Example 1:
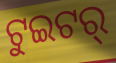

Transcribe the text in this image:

ଟୁଇଟର୍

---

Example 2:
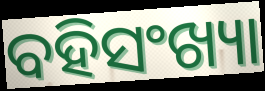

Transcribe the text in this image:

ବହିସଂଖ୍ୟା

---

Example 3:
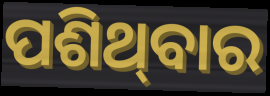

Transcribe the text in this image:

ପଶିଥ୍‌ବାର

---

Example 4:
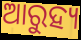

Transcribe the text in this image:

ଆରୁହ୍ୟ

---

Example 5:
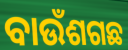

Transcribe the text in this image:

ବାଉଁଶଗଛ